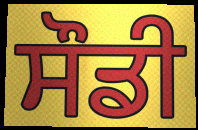
ਸੌਡੀ